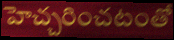
హెచ్చరించటంతో